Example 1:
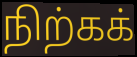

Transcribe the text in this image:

நிற்கக்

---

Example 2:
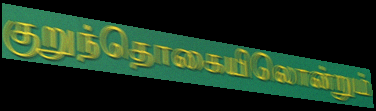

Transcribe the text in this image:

குறுந்தொகையிலொன்றும்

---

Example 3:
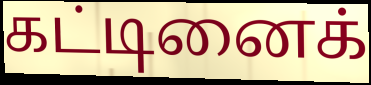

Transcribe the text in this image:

கட்டினைக்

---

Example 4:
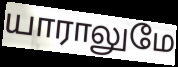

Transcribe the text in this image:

யாராலுமே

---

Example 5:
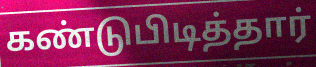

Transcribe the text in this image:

கண்டுபிடித்தார்